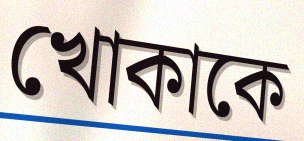
খোকাকে